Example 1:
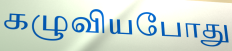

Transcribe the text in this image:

கழுவியபோது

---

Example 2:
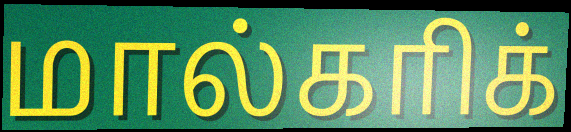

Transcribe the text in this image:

மால்கரிக்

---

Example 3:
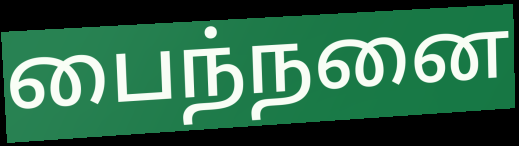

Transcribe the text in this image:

பைந்நனை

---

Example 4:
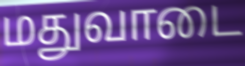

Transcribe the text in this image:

மதுவாடை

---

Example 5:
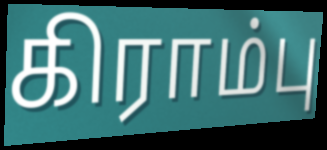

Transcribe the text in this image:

கிராம்பு